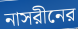
নাসরীনের